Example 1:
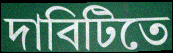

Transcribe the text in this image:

দাবিটিতে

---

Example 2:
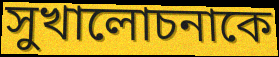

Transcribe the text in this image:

সুখালোচনাকে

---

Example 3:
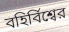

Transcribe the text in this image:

বহির্বিশ্বের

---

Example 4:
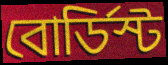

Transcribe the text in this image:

বোর্ডিস্ট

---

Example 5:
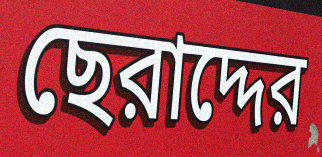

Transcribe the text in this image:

ছেরাদ্দের